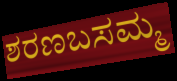
ಶರಣಬಸಮ್ಮ